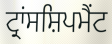
ਟ੍ਰਾਂਸਸ਼ਿਪਮੈਂਟ